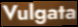
Vulgata